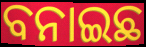
ବନାଇଛ